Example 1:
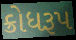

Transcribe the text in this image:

ક્રોધરૂપ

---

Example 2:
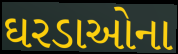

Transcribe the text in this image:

ઘરડાઓના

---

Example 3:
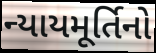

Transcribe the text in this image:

ન્યાયમૂર્તિનો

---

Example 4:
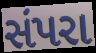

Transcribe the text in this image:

સંપરા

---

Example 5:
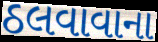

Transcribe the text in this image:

ઠલવાવાના